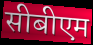
सीबीएम